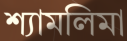
শ্যামলিমা